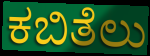
ಕಬಿತೆಲು